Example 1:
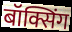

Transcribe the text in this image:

बॉक्सिंग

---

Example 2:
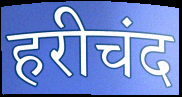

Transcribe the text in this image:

हरीचंद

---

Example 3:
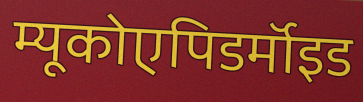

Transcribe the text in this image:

म्यूकोएपिडर्मॉइड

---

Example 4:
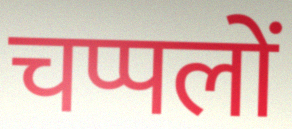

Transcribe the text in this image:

चप्पलों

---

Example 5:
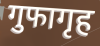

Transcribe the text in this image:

गुफागृह